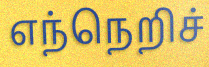
எந்நெறிச்